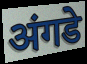
अंगडे